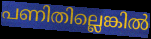
പണിതില്ലെങ്കിൽ